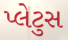
પ્લેટુસ